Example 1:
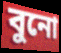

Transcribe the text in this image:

বুনো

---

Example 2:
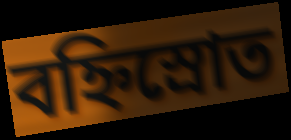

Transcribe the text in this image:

বহ্নিস্রোত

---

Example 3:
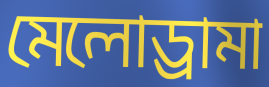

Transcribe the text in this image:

মেলোড্রামা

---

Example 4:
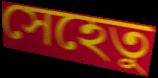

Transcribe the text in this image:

সেহেতু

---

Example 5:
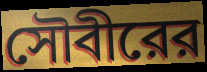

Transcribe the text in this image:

সৌবীরের